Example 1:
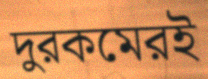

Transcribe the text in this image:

দুরকমেরই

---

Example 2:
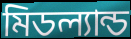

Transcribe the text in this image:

মিডল্যান্ড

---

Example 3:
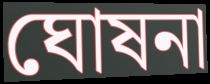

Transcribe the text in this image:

ঘোষনা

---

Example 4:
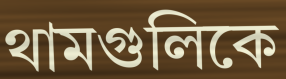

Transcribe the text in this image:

থামগুলিকে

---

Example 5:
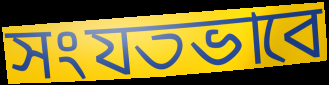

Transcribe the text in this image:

সংযতভাবে